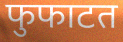
फुफाटत